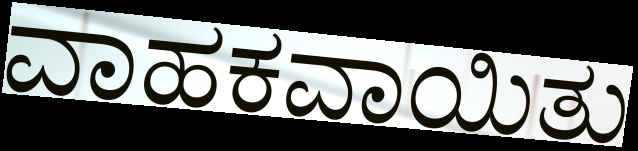
ವಾಹಕವಾಯಿತು